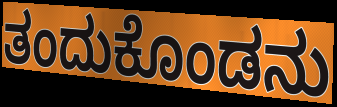
ತಂದುಕೊಂಡನು